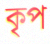
কৃপ